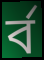
র্ব